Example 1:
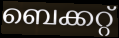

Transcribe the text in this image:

ബെക്കറ്റ്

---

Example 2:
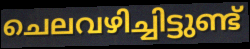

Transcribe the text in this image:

ചെലവഴിച്ചിട്ടുണ്ട്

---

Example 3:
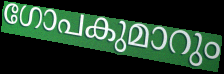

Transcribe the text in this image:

ഗോപകുമാറും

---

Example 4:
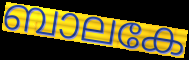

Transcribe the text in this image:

ബാലകേ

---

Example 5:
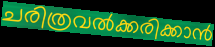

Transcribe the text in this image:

ചരിത്രവൽക്കരിക്കാൻ